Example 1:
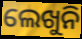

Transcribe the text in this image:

ଲେଖୁନି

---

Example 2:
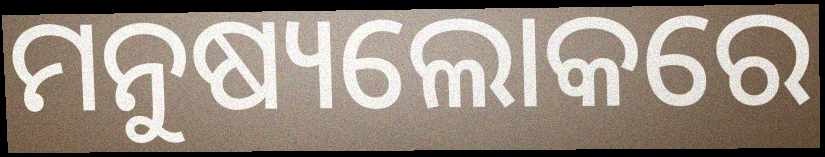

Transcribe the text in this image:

ମନୁଷ୍ୟଲୋକରେ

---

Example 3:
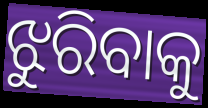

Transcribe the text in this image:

ଝୁରିବାକୁ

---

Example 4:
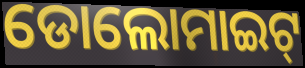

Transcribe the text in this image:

ଡୋଲୋମାଇଟ୍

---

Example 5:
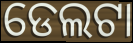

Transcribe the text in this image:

ଡେଲଟା